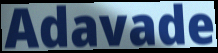
Adavade